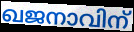
ഖജനാവിന്